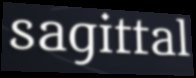
sagittal